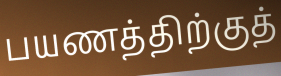
பயணத்திற்குத்